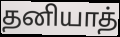
தனியாத்